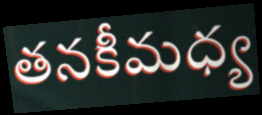
తనకీమధ్య